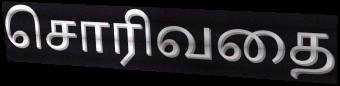
சொரிவதை